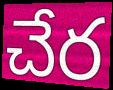
చేర